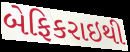
બેફિકરાઇથી